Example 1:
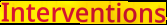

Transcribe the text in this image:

Interventions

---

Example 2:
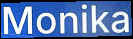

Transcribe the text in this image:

Monika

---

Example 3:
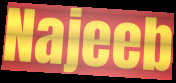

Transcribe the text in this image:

Najeeb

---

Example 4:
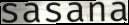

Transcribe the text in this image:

sasana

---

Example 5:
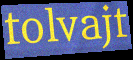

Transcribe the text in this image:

tolvajt